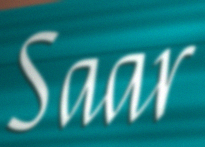
Saar